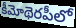
కీమోథెరపీలో